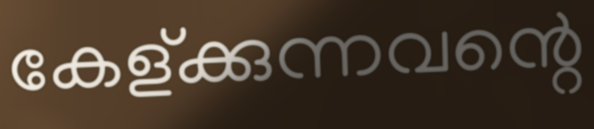
കേള്ക്കുന്നവന്റെ